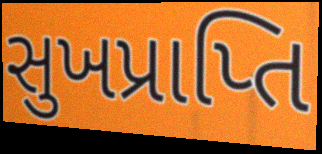
સુખપ્રાપ્તિ